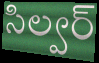
సిల్వర్